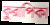
কুরাপিকা